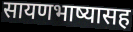
सायणभाष्यासह